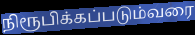
நிரூபிக்கப்படும்வரை